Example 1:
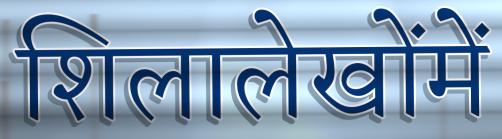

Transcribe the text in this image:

शिलालेखोंमें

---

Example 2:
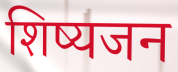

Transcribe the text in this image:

शिष्यजन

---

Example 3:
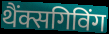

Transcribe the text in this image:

थैंक्सगिविंग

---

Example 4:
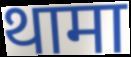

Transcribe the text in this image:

थामा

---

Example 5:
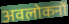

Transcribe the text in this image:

अवलोकनों